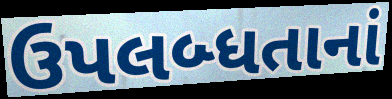
ઉપલબ્ધતાનાં